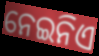
ନେଇନିଏ